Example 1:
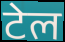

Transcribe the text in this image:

टेल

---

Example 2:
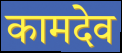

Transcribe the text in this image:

कामदेव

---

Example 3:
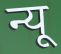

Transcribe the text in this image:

न्यू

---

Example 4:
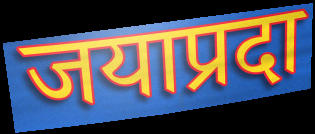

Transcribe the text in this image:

जयाप्रदा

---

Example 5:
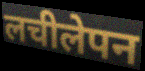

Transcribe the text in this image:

लचीलेपन